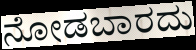
ನೋಡಬಾರದು